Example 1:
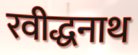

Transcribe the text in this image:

रवीद्धनाथ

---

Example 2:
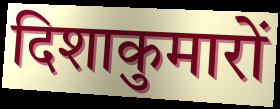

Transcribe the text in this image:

दिशाकुमारों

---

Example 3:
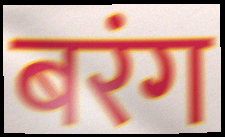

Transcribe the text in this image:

बरंग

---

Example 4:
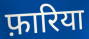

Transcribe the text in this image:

फ़ारिया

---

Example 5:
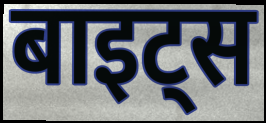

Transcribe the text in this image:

बाइट्स